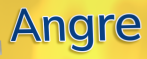
Angre